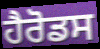
ਹੈਰੋਡਸ